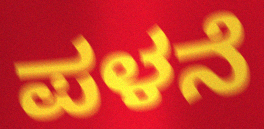
ಪಳನೆ